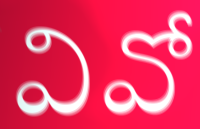
వివో